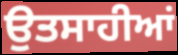
ਉਤਸਾਹੀਆਂ